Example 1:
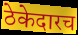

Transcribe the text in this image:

ठेकेदारच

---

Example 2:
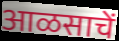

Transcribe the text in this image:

आळसाचें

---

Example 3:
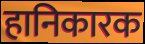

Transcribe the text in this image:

हानिकारक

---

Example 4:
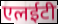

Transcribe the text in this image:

एलईटी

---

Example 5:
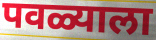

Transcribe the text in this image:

पवळ्याला